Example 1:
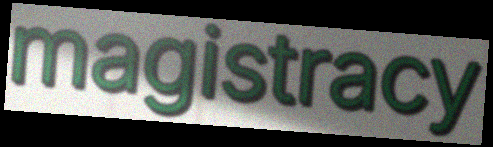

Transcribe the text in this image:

magistracy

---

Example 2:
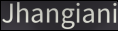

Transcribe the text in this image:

Jhangiani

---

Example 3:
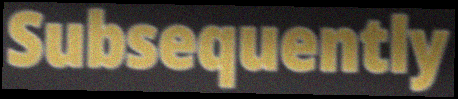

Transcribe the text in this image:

Subsequently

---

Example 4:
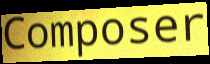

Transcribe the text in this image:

Composer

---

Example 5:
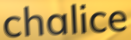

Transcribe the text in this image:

chalice